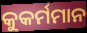
କୁକର୍ମମାନ